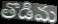
తొడిమ